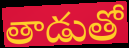
తాడుతో